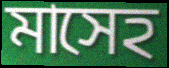
মাসেহ